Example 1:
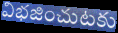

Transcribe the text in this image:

విభజించుటకు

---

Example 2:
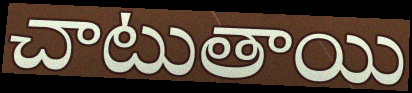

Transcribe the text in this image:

చాటుతాయి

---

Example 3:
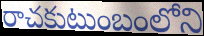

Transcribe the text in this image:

రాచకుటుంబంలోని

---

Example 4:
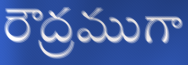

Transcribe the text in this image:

రౌద్రముగా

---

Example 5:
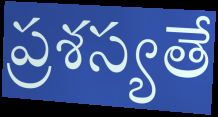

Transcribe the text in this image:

ప్రశస్యతే